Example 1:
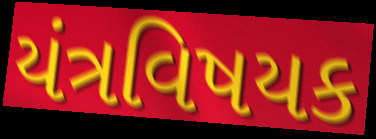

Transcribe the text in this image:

યંત્રવિષયક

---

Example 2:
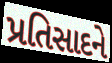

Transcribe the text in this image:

પ્રતિસાદને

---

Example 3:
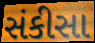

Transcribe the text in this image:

સંકીસા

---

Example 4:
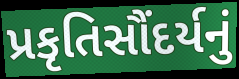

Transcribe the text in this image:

પ્રકૃતિસૌંદર્યનું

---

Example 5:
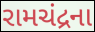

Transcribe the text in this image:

રામચંદ્રના